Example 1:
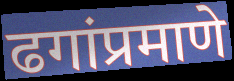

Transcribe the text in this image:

ढगांप्रमाणे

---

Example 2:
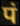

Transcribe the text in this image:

पं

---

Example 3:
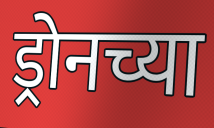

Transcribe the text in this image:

ड्रोनच्या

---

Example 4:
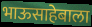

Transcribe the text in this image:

भाऊसाहेबाला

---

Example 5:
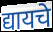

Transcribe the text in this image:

द्यायचे